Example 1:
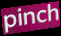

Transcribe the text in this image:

pinch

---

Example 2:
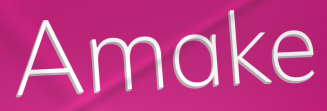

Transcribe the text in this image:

Amake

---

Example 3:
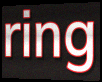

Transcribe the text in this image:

ring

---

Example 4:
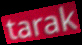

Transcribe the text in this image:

tarak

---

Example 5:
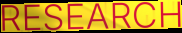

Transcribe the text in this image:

RESEARCH